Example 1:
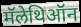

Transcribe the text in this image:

मॅलेथिऑन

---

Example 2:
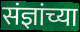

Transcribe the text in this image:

संज्ञांच्या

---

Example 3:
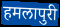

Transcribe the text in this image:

हमलापुरी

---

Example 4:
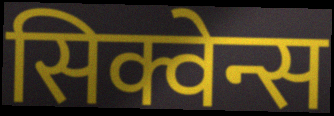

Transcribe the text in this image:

सिक्वेन्स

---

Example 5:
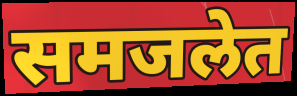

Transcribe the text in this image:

समजलेत